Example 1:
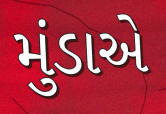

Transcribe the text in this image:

મુંડાએ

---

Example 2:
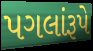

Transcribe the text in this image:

પગલાંરૂપે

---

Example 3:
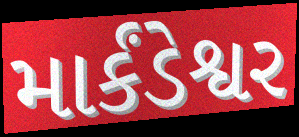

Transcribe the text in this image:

માર્કંડેશ્વર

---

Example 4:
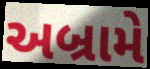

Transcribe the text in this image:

અબ્રામે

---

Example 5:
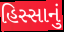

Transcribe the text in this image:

હિસ્સાનું